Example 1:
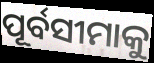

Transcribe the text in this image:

ପୂର୍ବସୀମାକୁ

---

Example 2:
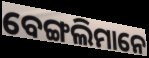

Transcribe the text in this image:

ବେଙ୍ଗଲିମାନେ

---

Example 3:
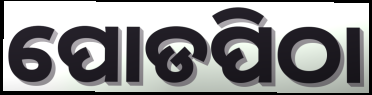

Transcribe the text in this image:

ପୋଡପିଠା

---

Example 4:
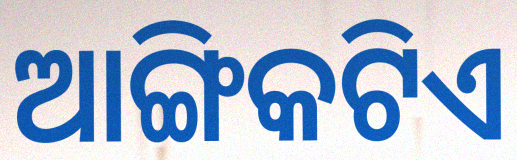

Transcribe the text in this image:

ଆଙ୍ଗିକଟିଏ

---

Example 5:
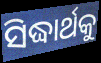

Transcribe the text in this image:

ସିଦ୍ଧାର୍ଥକୁ